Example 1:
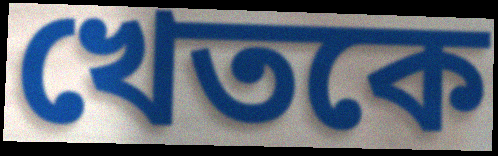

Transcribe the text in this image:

খেতকে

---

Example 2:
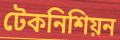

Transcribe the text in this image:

টেকনিশিয়ন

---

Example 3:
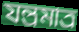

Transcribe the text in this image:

যন্ত্রমাত্র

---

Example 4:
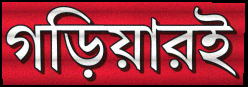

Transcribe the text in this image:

গড়িয়ারই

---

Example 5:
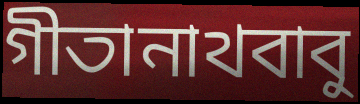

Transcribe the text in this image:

গীতানাথবাবু